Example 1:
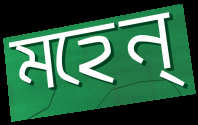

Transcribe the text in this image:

মহেন্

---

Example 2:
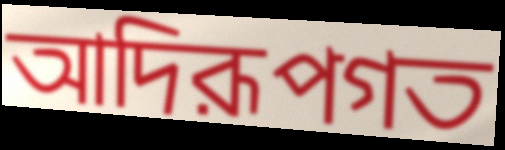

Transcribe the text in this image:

আদিরূপগত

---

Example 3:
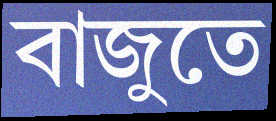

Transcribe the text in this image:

বাজুতে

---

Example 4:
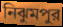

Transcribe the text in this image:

নিঝুমপুর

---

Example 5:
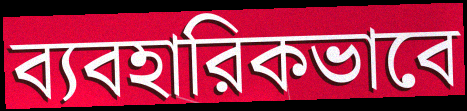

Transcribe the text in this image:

ব্যবহারিকভাবে